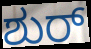
ಶುರ್